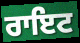
ਰਾਇਟ